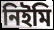
নিইমি